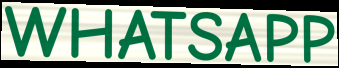
WHATSAPP